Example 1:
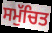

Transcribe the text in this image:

ਸਮੁੱਚਿਤ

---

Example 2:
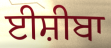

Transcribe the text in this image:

ਈਸ਼ੀਬਾ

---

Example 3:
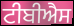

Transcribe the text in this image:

ਟੀਬੀਐਸ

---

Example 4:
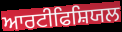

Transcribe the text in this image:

ਆਰਟੀਫਿਸ਼ਿਯਲ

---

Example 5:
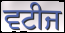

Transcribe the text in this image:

ਵਟੀਜ